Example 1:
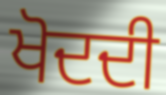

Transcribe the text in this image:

ਖੋਦਦੀ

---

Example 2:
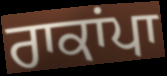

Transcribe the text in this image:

ਰਾਕਾਂਪਾ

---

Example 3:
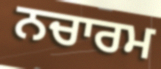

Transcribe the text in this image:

ਨਚਾਰਮ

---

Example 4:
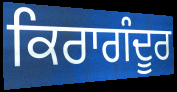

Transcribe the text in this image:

ਕਿਰਾਗੰਦੂਰ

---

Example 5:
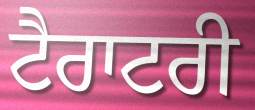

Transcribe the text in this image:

ਟੈਰਾਟਰੀ